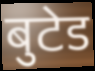
बुटेड